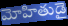
మోహితుడై